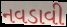
નવડાવી